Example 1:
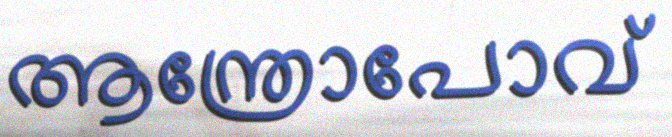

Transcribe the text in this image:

ആന്ത്രോപോവ്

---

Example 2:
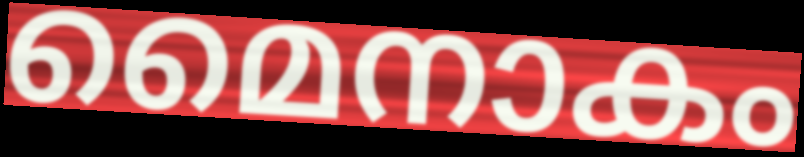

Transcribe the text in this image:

മൈനാകം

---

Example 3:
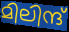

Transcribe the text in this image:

മിലിന്ദ്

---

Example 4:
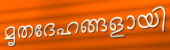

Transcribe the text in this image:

മൃതദേഹങ്ങളായി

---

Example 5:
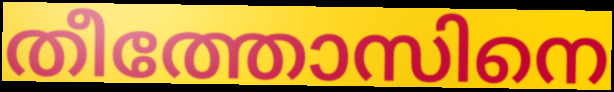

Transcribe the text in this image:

തീത്തോസിനെ